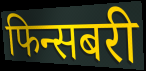
फिन्सबरी